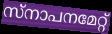
സ്നാപനമേറ്റ്